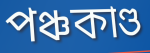
পঞ্চকাণ্ড